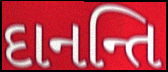
દાનન્તિ